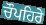
ਚੌਪਹਿਰੇ